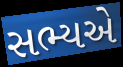
સભ્યએ